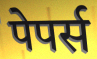
पेपर्स